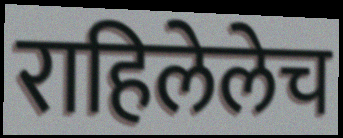
राहिलेलेच